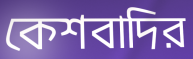
কেশবাদির